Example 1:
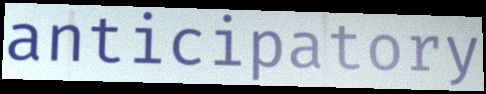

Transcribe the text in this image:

anticipatory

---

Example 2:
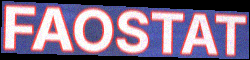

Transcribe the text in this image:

FAOSTAT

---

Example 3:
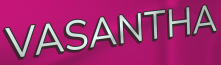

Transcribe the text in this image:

VASANTHA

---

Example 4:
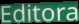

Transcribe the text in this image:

Editora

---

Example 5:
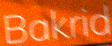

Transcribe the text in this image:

Bakrid